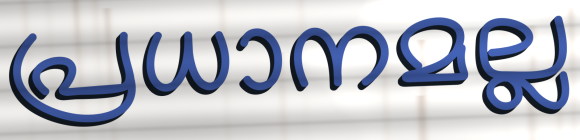
പ്രധാനമല്ല